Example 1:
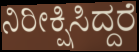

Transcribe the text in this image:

ನಿರೀಕ್ಷಿಸಿದ್ದರೆ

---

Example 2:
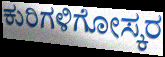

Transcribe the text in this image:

ಕುರಿಗಳಿಗೋಸ್ಕರ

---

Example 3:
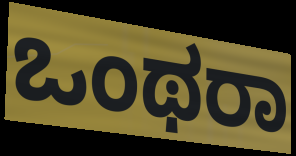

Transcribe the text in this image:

ಒಂಥರಾ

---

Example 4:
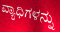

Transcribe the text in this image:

ವ್ಯಾಧಿಗಳನ್ನು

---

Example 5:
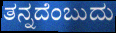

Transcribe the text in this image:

ತನ್ನದೆಂಬುದು